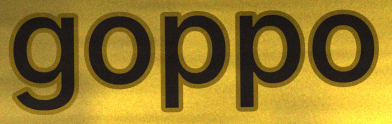
goppo